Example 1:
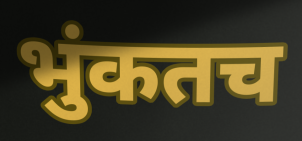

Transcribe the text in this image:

भुंकतच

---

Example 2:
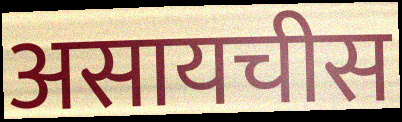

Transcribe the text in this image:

असायचीस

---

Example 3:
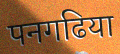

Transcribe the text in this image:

पनगढिया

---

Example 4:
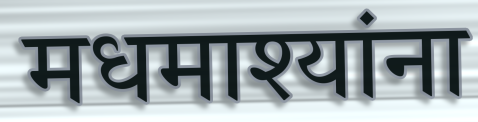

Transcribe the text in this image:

मधमाश्यांना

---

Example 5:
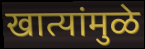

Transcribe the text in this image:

खात्यांमुळे